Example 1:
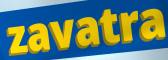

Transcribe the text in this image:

zavatra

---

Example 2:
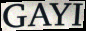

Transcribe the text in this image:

GAYI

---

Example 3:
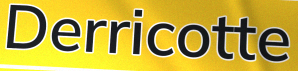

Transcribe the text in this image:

Derricotte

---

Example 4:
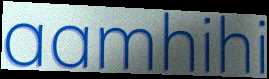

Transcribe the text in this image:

aamhihi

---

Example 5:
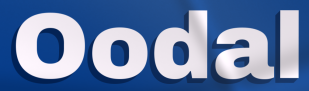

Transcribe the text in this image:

Oodal